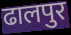
ढालपुर